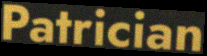
Patrician